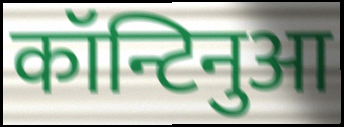
कॉन्टिनुआ